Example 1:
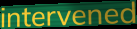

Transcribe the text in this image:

intervened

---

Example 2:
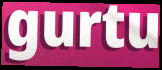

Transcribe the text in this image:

gurtu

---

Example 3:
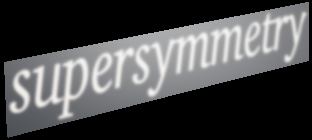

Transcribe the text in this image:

supersymmetry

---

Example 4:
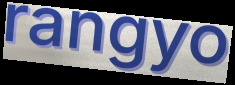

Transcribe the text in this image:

rangyo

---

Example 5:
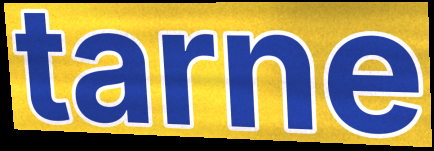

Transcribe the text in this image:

tarne